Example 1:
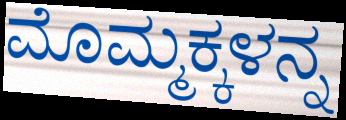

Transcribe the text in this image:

ಮೊಮ್ಮಕ್ಕಳನ್ನ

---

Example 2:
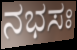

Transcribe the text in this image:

ನಭಸಃ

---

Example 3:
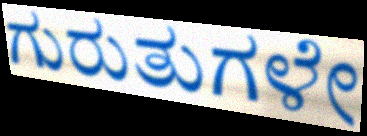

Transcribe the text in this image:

ಗುರುತುಗಳೇ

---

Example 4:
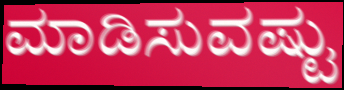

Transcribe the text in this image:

ಮಾಡಿಸುವಷ್ಟು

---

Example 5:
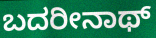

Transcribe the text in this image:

ಬದರೀನಾಥ್